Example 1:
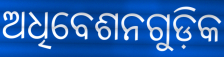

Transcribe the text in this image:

ଅଧିବେଶନଗୁଡ଼ିକ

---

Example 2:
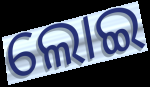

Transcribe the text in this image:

ଲୋଇ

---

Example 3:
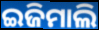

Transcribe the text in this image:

ଇଜିମାଲି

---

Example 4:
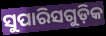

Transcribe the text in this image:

ସୁପାରିସଗୁଡ଼ିକ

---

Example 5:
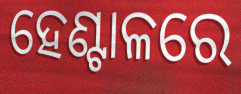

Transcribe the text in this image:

ହେଣ୍ଟାଳରେ